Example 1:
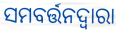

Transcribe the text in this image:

ସମବର୍ତ୍ତନଦ୍ୱାରା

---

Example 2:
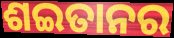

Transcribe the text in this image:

ଶଇତାନର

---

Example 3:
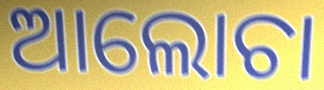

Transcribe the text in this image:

ଆଲୋଚା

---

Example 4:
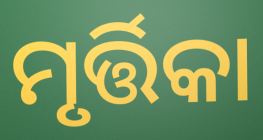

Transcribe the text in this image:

ମୃର୍ତ୍ତିକା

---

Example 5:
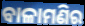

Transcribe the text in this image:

ବାଳାମଣିର